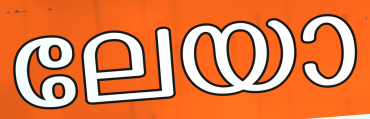
ലേയാ